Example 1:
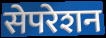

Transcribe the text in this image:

सेपरेशन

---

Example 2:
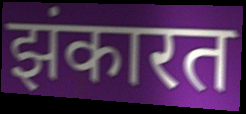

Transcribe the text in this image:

झंकारत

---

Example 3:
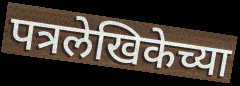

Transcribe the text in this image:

पत्रलेखिकेच्या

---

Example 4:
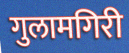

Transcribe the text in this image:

गुलामगिरी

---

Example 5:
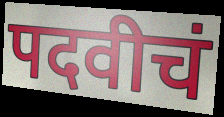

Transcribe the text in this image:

पदवीचं